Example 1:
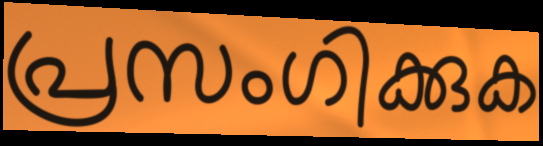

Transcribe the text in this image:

പ്രസംഗിക്കുക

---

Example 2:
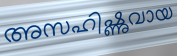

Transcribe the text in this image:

അസഹിഷ്ണുവായ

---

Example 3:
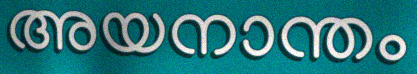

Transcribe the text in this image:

അയനാന്തം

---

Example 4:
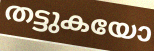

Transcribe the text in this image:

തട്ടുകയോ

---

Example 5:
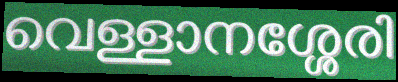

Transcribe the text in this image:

വെള്ളാനശ്ശേരി